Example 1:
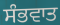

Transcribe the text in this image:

ਸੰਭਵਾਤ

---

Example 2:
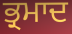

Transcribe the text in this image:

ਭ੍ਰਮਾਦ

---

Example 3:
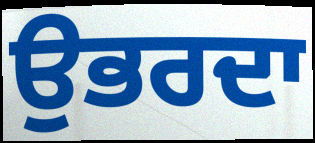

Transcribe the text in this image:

ਉਭਰਦਾ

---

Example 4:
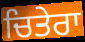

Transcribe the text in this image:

ਚਿਤੇਰਾ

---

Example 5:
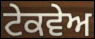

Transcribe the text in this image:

ਟੇਕਵੇਅ